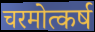
चरमोत्कर्ष